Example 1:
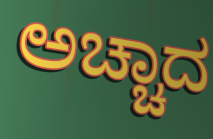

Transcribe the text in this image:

ಅಚ್ಚಾದ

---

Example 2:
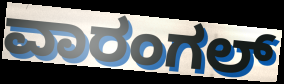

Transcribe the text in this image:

ವಾರಂಗಲ್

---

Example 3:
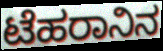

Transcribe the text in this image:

ಟೆಹರಾನಿನ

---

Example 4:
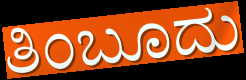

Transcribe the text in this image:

ತಿಂಬೂದು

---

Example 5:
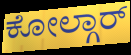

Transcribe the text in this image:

ಕೋಲ್ಗಾರ್